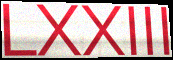
LXXIII